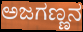
ಅಜಗಣ್ಣನ